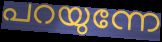
പറയുന്നേ